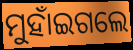
ମୁହାଁଇଗଲେ